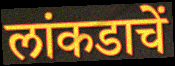
लांकडाचें